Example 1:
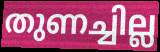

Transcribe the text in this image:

തുണച്ചില്ല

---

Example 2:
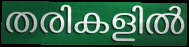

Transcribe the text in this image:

തരികളിൽ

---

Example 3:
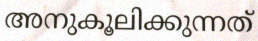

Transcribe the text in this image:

അനുകൂലിക്കുന്നത്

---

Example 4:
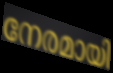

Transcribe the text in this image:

നേരമായി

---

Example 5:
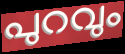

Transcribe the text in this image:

പുറവും